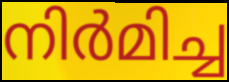
നിർമിച്ച